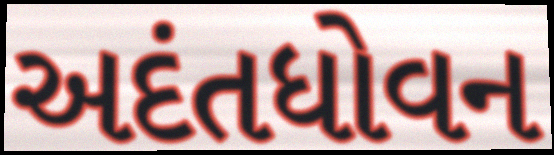
અદંતધોવન